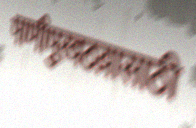
पाणीपुरवठय़ासाठी